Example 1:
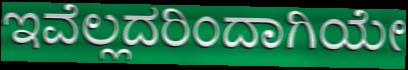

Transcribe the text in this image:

ಇವೆಲ್ಲದರಿಂದಾಗಿಯೇ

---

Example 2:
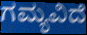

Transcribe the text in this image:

ಗಮ್ಯವಿದೆ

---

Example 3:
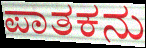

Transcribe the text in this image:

ಪಾತಕನು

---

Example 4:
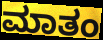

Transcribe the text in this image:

ಮಾತಂ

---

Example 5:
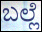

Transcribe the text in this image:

ಬಲ್ಲೆ